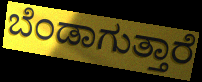
ಬೆಂಡಾಗುತ್ತಾರೆ